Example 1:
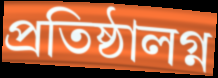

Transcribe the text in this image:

প্রতিষ্ঠালগ্ন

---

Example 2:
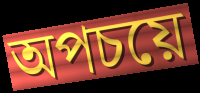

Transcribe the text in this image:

অপচয়ে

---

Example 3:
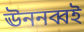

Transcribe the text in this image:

ঊননব্বই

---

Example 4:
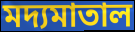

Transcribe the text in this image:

মদ্যমাতাল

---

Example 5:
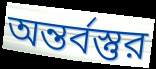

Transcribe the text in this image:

অন্তর্বস্তুর